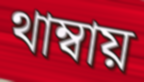
থাম্বায়